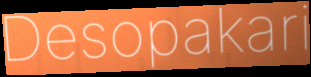
Desopakari